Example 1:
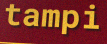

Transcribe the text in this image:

tampi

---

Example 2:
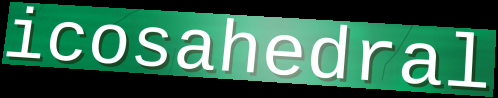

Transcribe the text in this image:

icosahedral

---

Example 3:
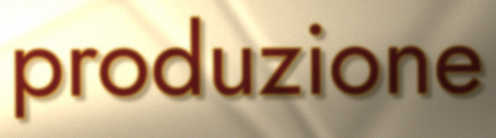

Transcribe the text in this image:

produzione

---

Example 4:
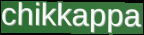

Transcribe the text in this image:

chikkappa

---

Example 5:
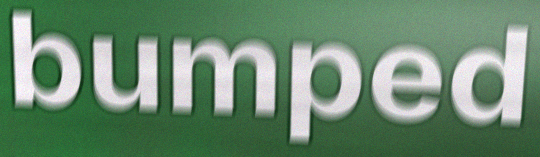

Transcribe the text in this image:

bumped